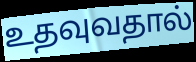
உதவுவதால்